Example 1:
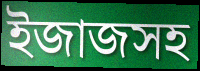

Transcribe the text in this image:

ইজাজসহ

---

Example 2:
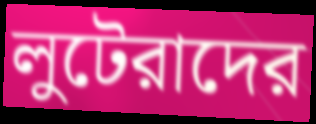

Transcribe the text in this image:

লুটেরাদের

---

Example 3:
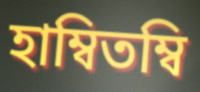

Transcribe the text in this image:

হাম্বিতম্বি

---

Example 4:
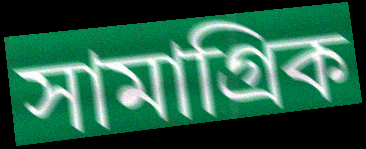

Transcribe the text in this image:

সামাগ্রিক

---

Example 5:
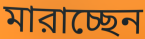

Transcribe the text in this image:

মারাচ্ছেন